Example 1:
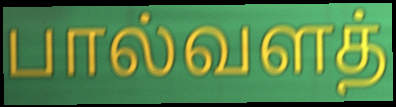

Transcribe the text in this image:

பால்வளத்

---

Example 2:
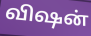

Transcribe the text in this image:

விஷன்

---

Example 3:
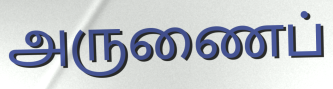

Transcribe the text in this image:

அருணைப்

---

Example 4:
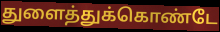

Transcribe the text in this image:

துளைத்துக்கொண்டே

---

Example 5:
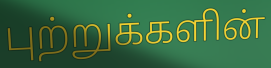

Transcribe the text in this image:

புற்றுக்களின்